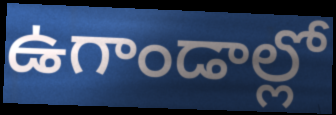
ఉగాండాల్లో